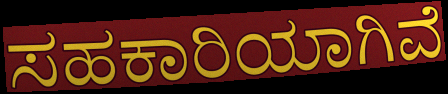
ಸಹಕಾರಿಯಾಗಿವೆ